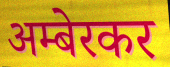
अम्बेरकर